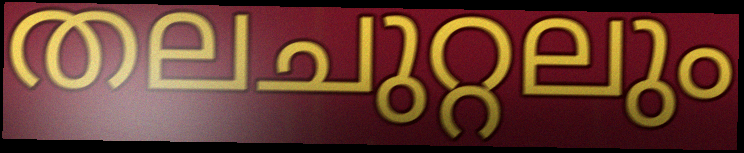
തലചുറ്റലും